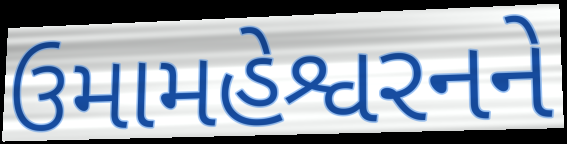
ઉમામહેશ્વરનને